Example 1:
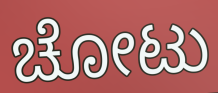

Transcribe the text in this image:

ಚೋಟು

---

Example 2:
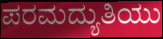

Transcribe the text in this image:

ಪರಮದ್ಯುತಿಯು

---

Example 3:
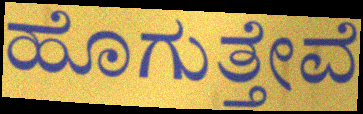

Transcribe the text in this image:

ಹೊಗುತ್ತೇವೆ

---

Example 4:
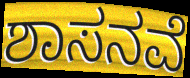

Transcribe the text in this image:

ಶಾಸನವೆ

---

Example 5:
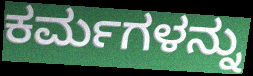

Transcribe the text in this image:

ಕರ್ಮಗಳನ್ನು